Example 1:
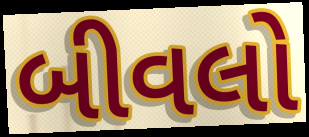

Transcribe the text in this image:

બીવલો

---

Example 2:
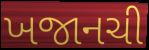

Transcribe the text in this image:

ખજાનચી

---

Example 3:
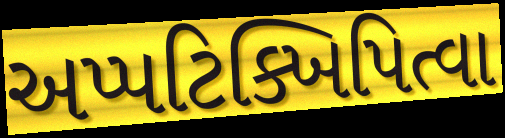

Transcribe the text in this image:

અપ્પટિક્ખિપિત્વા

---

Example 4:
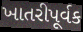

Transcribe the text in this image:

ખાતરીપૂર્વક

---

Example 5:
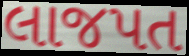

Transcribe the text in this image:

લાજપત